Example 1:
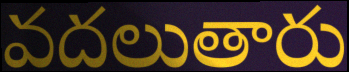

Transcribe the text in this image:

వదలుతారు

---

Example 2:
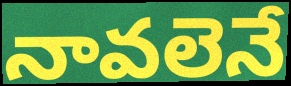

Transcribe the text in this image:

నావలెనే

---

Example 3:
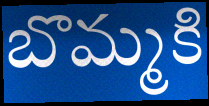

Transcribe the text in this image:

బొమ్మకి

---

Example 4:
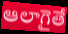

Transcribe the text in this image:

ఆలాగైతే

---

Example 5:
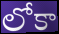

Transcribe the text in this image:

లోకా